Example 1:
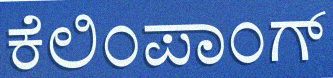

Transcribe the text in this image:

ಕೆಲಿಂಪಾಂಗ್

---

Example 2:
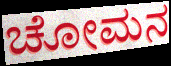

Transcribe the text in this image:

ಚೋಮನ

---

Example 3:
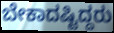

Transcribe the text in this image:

ಬೇಕಾದಷ್ಟಿದ್ದರು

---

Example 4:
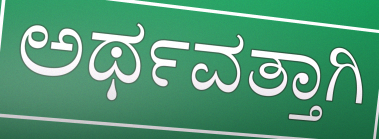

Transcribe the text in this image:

ಅರ್ಥವತ್ತಾಗಿ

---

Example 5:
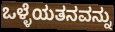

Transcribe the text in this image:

ಒಳ್ಳೆಯತನವನ್ನು